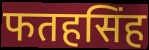
फतहसिंह